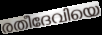
രതീദേവിയെ